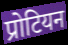
प्रोटियन